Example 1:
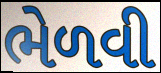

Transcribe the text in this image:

ભેળવી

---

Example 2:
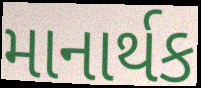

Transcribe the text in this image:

માનાર્થક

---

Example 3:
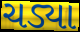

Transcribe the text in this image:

ચડ્યા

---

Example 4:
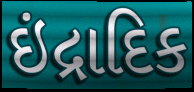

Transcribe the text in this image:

ઇંદ્રાદિક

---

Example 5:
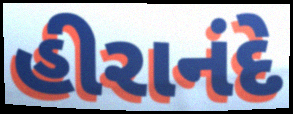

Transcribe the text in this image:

હીરાનંદે